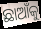
ଛାଆଁକୁ